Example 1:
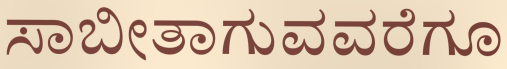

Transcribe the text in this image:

ಸಾಬೀತಾಗುವವರೆಗೂ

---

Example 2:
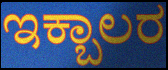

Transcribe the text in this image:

ಇಕ್ಬಾಲರ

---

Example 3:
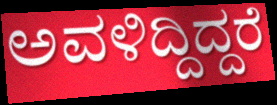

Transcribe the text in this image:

ಅವಳಿದ್ದಿದ್ದರೆ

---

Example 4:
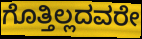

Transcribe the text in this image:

ಗೊತ್ತಿಲ್ಲದವರೇ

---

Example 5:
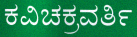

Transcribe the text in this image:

ಕವಿಚಕ್ರವರ್ತಿ